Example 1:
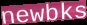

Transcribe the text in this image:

newbks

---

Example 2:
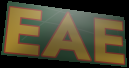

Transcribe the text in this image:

EAE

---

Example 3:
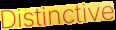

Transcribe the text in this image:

Distinctive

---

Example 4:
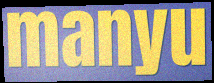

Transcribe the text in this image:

manyu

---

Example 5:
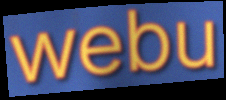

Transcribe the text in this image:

webu